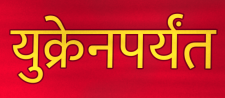
युक्रेनपर्यंत